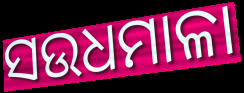
ସଉଧମାଳା